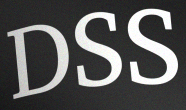
DSS